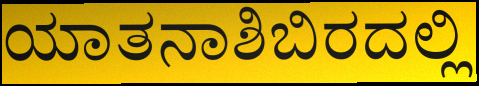
ಯಾತನಾಶಿಬಿರದಲ್ಲಿ